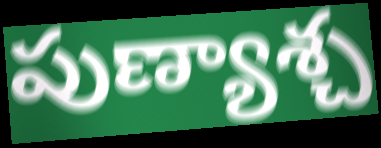
పుణ్యాశ్చ